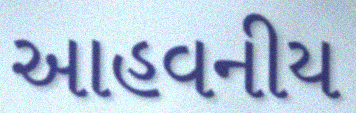
આહવનીય